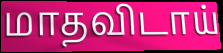
மாதவிடாய்